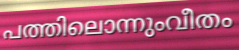
പത്തിലൊന്നുംവീതം